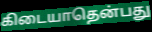
கிடையாதென்பது